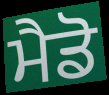
ਮੈਡੋ